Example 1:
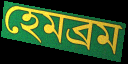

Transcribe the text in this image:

হেমব্রম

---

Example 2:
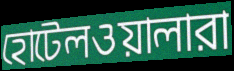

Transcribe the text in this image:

হোটেলওয়ালারা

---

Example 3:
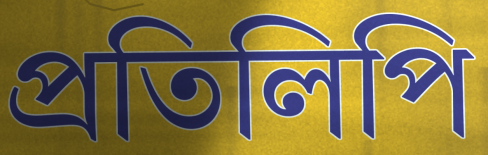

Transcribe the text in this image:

প্রতিলিপি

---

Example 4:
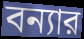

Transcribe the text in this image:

বন্যার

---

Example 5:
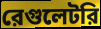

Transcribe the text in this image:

রেগুলেটরি